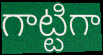
గాట్టిగా